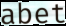
abet